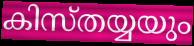
കിസ്തയ്യയും